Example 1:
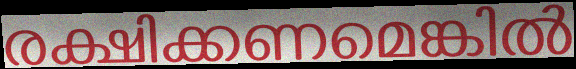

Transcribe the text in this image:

രക്ഷിക്കണമെങ്കിൽ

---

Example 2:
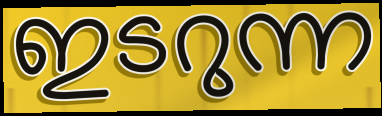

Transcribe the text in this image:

ഇടറുന്ന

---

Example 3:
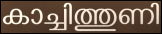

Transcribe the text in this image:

കാച്ചിത്തുണി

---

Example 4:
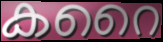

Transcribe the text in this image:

കറൈ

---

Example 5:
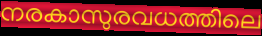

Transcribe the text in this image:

നരകാസുരവധത്തിലെ